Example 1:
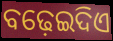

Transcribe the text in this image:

ବଢ଼େଇଦିଏ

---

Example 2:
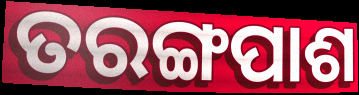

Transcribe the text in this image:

ତରଙ୍ଗପାଶ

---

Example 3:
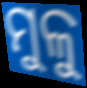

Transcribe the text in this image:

ମୁଳୁ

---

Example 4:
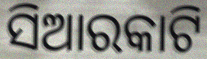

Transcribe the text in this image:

ସିଆରକାଟି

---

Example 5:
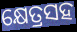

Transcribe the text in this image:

କ୍ଷେତ୍ରସହ